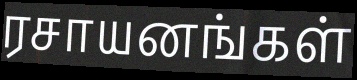
ரசாயனங்கள்